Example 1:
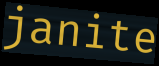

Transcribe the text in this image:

janite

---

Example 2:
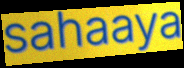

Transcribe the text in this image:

sahaaya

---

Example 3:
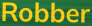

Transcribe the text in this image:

Robber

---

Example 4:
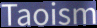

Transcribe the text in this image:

Taoism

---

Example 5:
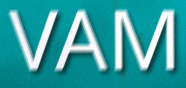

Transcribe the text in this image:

VAM